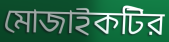
মোজাইকটির